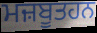
ਮਜ਼ਬੂਤਹਨ